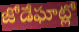
జోడేఘాట్లో